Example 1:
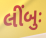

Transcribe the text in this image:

લીંબુઃ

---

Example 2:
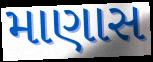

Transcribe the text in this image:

માણાસ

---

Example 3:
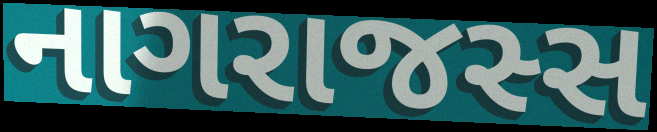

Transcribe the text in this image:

નાગરાજસ્સ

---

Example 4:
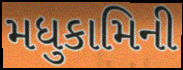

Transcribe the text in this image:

મધુકામિની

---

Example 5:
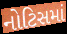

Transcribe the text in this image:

નોટિસમાં